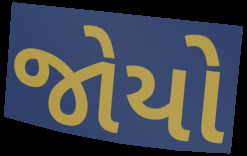
જોયો